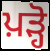
ਪ਼ੜ੍ਹੋ